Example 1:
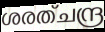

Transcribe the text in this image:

ശരത്ചന്ദ്ര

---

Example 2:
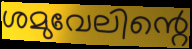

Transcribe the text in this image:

ശമുവേലിന്റെ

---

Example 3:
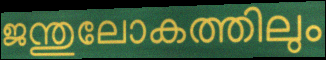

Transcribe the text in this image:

ജന്തുലോകത്തിലും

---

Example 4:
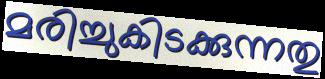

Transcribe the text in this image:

മരിച്ചുകിടക്കുന്നതു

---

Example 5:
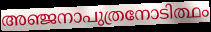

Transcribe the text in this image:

അഞ്ജനാപുത്രനോടിത്ഥം